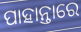
ପାହାନ୍ତାରେ